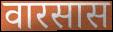
वारसास